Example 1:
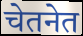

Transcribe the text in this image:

चेतनेत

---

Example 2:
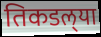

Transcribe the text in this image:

तिकडल्या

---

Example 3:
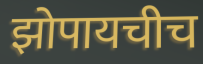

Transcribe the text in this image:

झोपायचीच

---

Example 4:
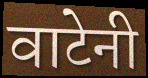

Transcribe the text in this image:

वाटेनी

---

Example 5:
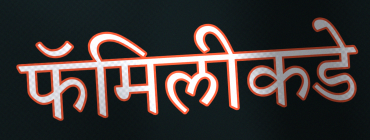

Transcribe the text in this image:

फॅमिलीकडे